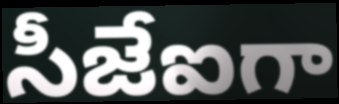
సీజేఐగా